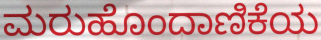
ಮರುಹೊಂದಾಣಿಕೆಯ